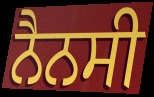
ਨੈਨਸੀ